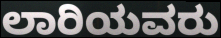
ಲಾರಿಯವರು